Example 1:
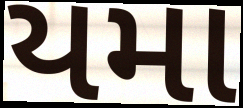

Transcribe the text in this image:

યમા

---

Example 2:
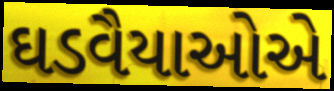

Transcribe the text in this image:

ઘડવૈયાઓએ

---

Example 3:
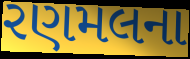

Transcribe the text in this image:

રણમલના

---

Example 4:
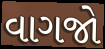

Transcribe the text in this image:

વાગજો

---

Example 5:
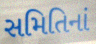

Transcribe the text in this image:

સમિતિનાં